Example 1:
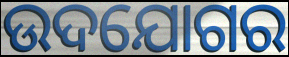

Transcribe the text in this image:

ଉଦଯୋଗର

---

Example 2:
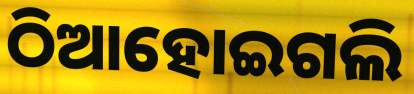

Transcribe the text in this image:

ଠିଆହୋଇଗଲି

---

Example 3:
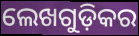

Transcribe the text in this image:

ଲେଖଗୁଡ଼ିକର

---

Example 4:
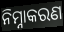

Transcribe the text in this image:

ନିମ୍ନାକରଣ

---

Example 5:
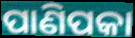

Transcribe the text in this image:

ପାଣିପକା